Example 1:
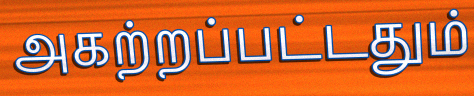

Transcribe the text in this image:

அகற்றப்பட்டதும்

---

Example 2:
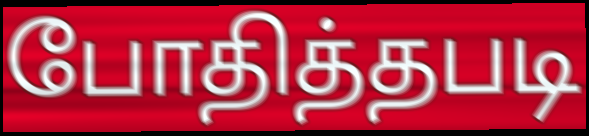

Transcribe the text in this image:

போதித்தபடி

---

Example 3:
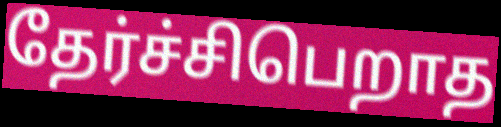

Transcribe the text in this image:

தேர்ச்சிபெறாத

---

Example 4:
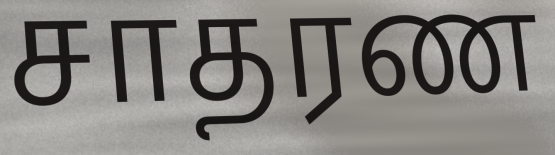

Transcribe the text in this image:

சாதரண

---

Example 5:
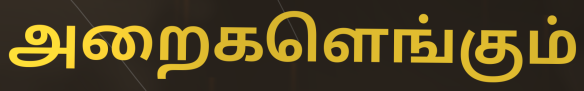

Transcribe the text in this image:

அறைகளெங்கும்